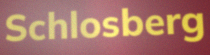
Schlosberg